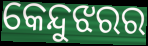
କେନ୍ଦୁଝରର